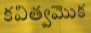
కవిత్వమొక